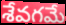
శేవగమే